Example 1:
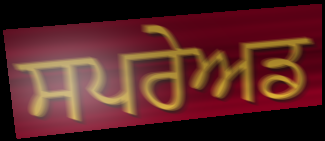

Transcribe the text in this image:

ਸਪਰੇਅਡ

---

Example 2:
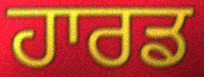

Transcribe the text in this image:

ਹਾਰਡ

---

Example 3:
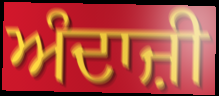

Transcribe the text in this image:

ਅੰਦਾਜ਼ੀ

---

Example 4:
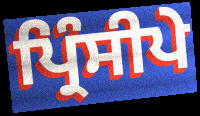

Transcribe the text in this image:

ਪ੍ਰਿੰਸੀਪੇ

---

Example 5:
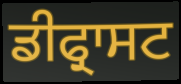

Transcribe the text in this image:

ਡੀਫ੍ਰਾਸਟ